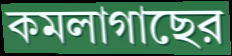
কমলাগাছের